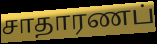
சாதாரணப்